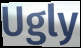
Ugly